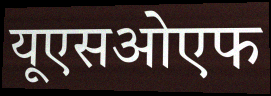
यूएसओएफ